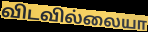
விடவில்லையா